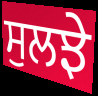
ਸੁਲਝੇ